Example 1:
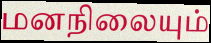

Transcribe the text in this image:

மனநிலையும்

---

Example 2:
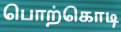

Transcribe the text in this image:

பொற்கொடி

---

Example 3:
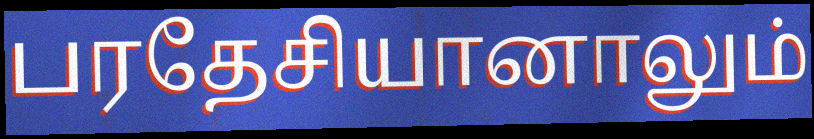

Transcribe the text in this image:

பரதேசியானாலும்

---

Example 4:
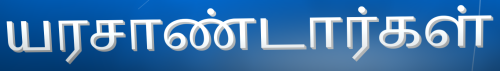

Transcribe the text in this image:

யரசாண்டார்கள்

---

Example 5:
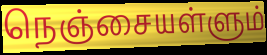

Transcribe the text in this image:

நெஞ்சையள்ளும்